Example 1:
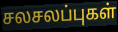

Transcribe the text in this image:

சலசலப்புகள்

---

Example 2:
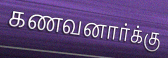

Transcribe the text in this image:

கணவனார்க்கு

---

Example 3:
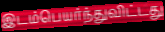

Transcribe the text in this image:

இடம்பெயர்ந்துவிட்டது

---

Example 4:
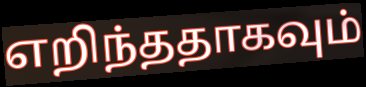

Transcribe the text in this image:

எறிந்ததாகவும்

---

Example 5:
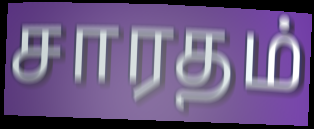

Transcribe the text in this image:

சாரதம்